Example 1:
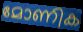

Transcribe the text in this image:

മോണിക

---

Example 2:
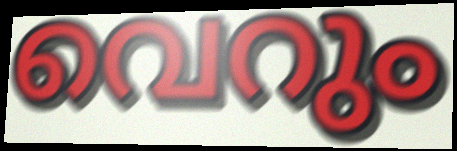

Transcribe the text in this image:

വെറും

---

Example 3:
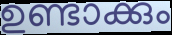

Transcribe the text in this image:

ഉണ്ടാക്കും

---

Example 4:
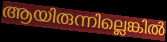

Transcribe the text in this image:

ആയിരുന്നില്ലെങ്കിൽ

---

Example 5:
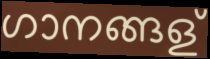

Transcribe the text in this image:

ഗാനങ്ങള്